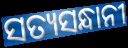
ସତ୍ୟସନ୍ଧାନୀ